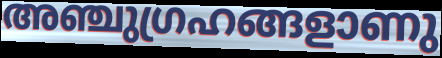
അഞ്ചുഗ്രഹങ്ങളാണു